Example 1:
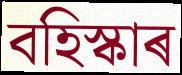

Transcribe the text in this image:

বহিস্কাৰ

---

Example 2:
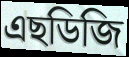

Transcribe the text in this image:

এছডিজি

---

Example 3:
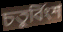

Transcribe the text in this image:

চতুৰ্বিংশ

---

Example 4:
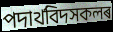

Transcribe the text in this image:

পদাৰ্থবিদসকলৰ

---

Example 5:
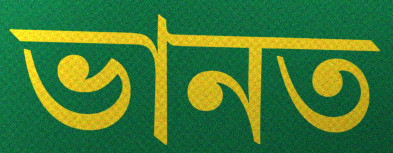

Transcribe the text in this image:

ভানত